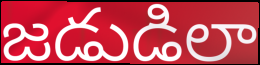
జడుడిలా